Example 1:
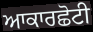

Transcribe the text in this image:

ਆਕਾਰਛੋਟੀ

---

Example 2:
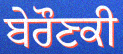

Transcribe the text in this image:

ਬੇਰੌਣਕੀ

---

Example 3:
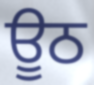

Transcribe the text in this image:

ਊਠ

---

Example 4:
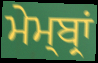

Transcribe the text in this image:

ਮੇਮ੍ਬ੍ਰਾਂ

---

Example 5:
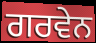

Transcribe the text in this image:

ਗਰਵੇਨ